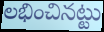
లభించినట్టు